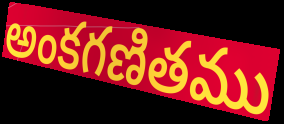
అంకగణితము